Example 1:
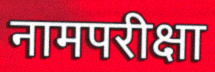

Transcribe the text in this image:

नामपरीक्षा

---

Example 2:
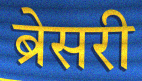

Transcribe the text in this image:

ब्रेसरी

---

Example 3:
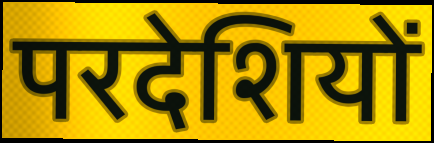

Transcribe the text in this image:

परदेशियों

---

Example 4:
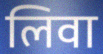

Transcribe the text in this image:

लिवा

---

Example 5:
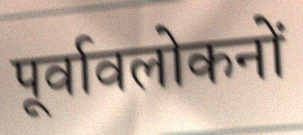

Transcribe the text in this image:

पूर्वावलोकनों